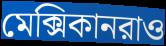
মেক্সিকানরাও